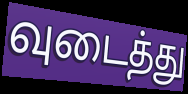
வுடைத்து